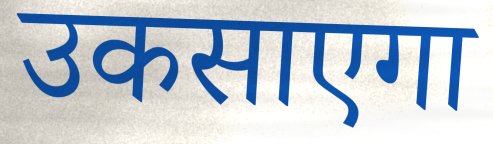
उकसाएगा